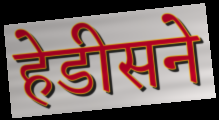
हेडीसने